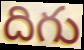
దిగు